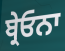
ਬ੍ਰੇਓਨਾ